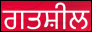
ਗਤਸ਼ੀਲ